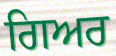
ਗਿਅਰ